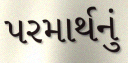
પરમાર્થનું